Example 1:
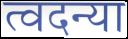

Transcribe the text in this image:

त्वदन्या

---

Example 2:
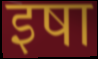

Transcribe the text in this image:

इषा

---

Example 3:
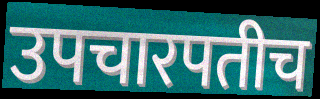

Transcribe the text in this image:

उपचारपतीच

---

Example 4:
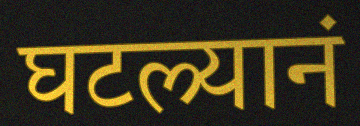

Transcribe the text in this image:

घटल्यानं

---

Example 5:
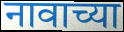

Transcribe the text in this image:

नावाच्या